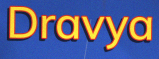
Dravya